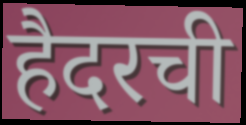
हैदरची